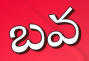
బవ